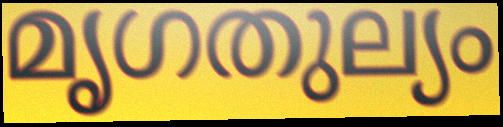
മൃഗതുല്യം